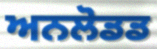
ਅਨਲੋਡਡ